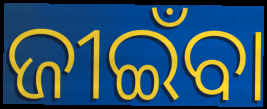
ଜୀଇଁବା